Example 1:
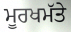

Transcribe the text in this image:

ਮੂਰਖਮੱਤੇ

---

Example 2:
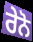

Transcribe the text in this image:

ਰੇਨੋ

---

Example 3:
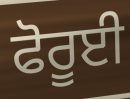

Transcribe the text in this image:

ਫੋਰੂਈ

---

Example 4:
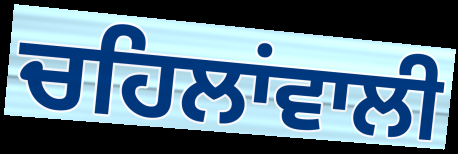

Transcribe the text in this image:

ਚਹਿਲਾਂਵਾਲੀ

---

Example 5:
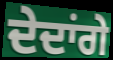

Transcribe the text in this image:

ਦੇਦਾਂਗੇ